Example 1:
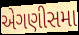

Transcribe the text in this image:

એગણીસમા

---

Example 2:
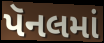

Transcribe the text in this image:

પૅનલમાં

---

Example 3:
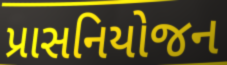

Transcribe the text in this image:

પ્રાસનિયોજન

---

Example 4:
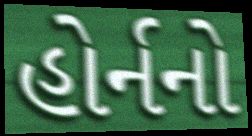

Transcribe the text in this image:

હોર્નનો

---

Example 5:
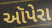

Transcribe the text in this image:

ઑપેરા